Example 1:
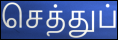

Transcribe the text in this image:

செத்துப்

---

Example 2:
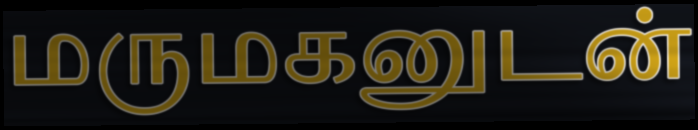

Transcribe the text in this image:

மருமகனுடன்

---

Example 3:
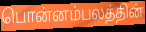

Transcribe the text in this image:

பொன்னம்பலத்தின்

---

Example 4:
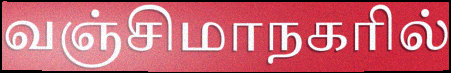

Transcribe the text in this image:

வஞ்சிமாநகரில்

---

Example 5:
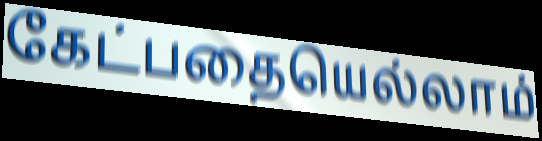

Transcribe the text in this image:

கேட்பதையெல்லாம்